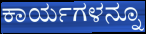
ಕಾರ್ಯಗಳನ್ನೂ